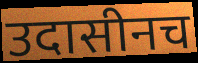
उदासीनच